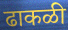
ढाकळी